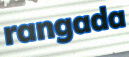
rangada